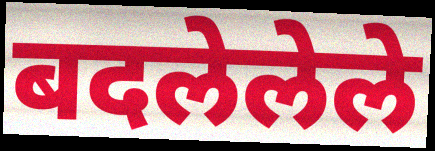
बदलेलेले